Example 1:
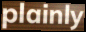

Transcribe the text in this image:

plainly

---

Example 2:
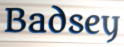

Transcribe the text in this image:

Badsey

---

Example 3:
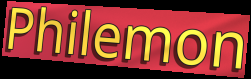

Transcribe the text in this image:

Philemon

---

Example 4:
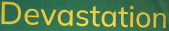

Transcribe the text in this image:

Devastation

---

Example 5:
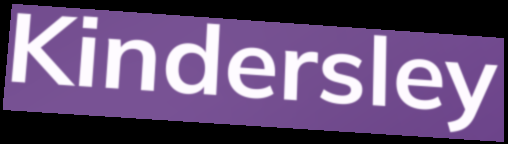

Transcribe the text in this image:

Kindersley